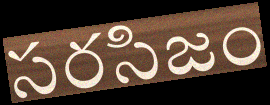
సరసిజం